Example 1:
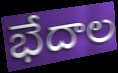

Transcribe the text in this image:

భేదాల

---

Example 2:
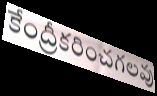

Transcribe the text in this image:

కేంద్రీకరించగలవు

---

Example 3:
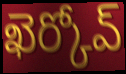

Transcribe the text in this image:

ఖెర్కోవ్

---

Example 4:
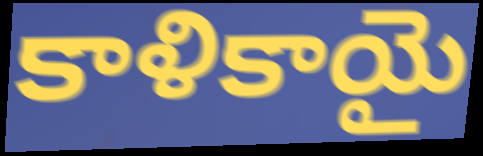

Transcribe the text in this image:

కాళికాయై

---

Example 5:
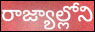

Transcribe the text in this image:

రాజ్యాల్లోని